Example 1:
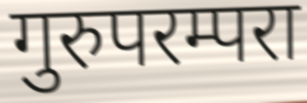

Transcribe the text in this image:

गुरुपरम्परा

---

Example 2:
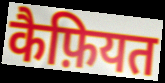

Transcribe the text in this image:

कैफ़ियत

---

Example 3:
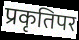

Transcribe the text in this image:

प्रकृतिपर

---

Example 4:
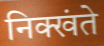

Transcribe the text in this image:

निक्खंते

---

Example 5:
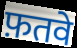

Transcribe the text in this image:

फ़तवे